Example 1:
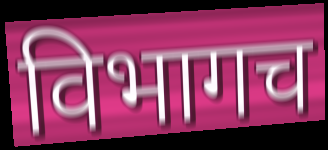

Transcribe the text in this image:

विभागच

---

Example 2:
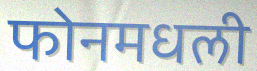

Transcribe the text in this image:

फोनमधली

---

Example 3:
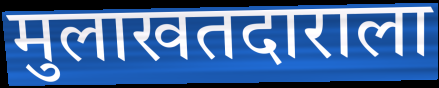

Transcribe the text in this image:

मुलाखतदाराला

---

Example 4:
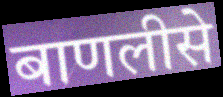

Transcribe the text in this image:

बाणलीसे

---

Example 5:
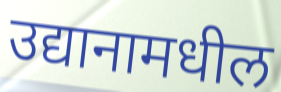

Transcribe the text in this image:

उद्यानामधील